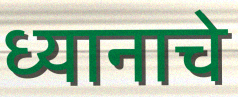
ध्यानाचे